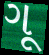
ગૂ